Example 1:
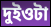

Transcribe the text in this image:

দুইওটা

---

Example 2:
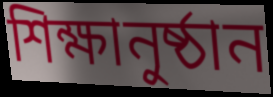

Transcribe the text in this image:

শিক্ষানুষ্ঠান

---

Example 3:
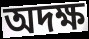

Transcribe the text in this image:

অদক্ষ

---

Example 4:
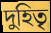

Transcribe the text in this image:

দুহিতৃ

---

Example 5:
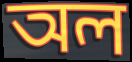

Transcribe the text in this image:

অল